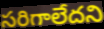
సరిగాలేదని